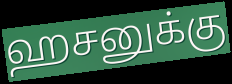
ஹசனுக்கு